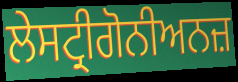
ਲੇਸਟ੍ਰੀਗੋਨੀਅਨਜ਼